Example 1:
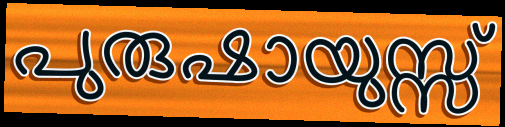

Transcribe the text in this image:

പുരുഷായുസ്സ്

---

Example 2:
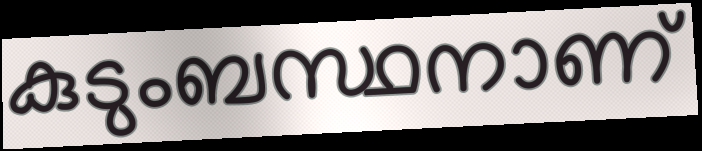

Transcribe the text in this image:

കുടുംബസ്ഥനാണ്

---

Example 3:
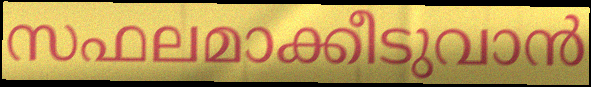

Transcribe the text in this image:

സഫലമാക്കീടുവാൻ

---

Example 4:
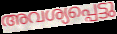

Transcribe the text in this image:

അവശ്യപ്പെട്ടു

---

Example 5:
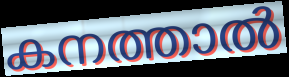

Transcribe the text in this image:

കനത്താൽ